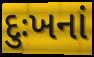
દુઃખનાં